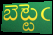
బెట్టెఁ